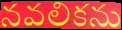
నవలికను